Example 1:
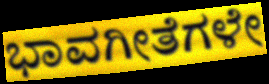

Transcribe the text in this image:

ಭಾವಗೀತೆಗಳೇ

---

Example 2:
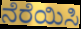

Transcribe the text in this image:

ನೆರೆಯಿಸಿ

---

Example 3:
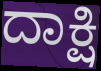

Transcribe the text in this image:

ದಾಕ್ಷಿ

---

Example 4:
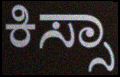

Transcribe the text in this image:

ಕಿಸ್ಸಾ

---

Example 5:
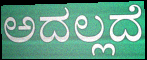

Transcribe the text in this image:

ಅದಲ್ಲದೆ